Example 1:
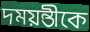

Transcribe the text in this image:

দময়ন্তীকে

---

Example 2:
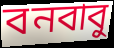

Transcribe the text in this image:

বনবাবু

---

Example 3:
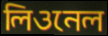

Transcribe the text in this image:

লিওনেল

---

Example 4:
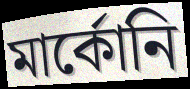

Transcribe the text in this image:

মার্কোনি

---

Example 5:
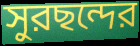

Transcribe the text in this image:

সুরছন্দের